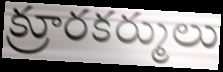
క్రూరకర్ములు